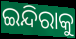
ଇନ୍ଦିରାକୁ